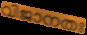
വിജാനതഃ